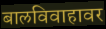
बालविवाहावर